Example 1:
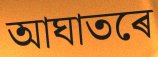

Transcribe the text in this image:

আঘাতৰে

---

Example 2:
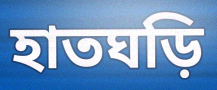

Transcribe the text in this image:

হাতঘড়ি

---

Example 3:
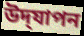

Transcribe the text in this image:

উদ্‌যাপন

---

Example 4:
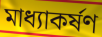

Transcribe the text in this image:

মাধ্যাকৰ্ষণ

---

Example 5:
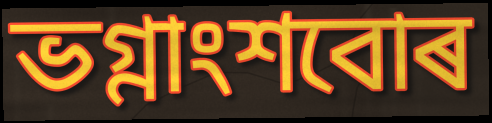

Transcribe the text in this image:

ভগ্নাংশবোৰ